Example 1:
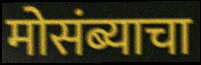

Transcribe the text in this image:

मोसंब्याचा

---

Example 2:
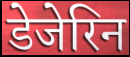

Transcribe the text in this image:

डेजेरिन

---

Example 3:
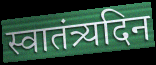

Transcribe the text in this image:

स्वातंत्र्यदिन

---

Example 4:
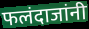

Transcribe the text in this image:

फलंदाजांनी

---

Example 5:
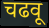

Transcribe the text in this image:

चढवू